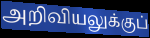
அறிவியலுக்குப்